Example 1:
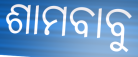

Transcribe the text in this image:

ଶାମବାବୁ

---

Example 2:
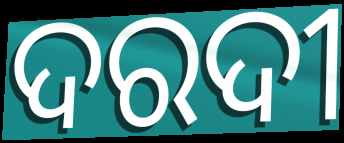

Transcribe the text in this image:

ଦରଦୀ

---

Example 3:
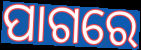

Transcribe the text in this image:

ପାଗରେ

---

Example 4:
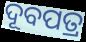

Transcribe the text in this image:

ଦୂବପତ୍ର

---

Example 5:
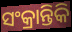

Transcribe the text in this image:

ସଂକ୍ରାନ୍ତିକି